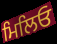
ਮਿਲਿਓ